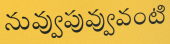
నువ్వుపువ్వువంటి